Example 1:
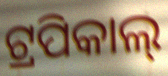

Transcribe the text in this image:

ଟ୍ରପିକାଲ୍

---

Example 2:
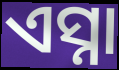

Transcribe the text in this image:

ଏସ୍ନା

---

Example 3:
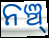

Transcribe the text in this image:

ନଞ୍ଚ୍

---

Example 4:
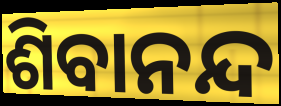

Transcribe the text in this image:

ଶିବାନନ୍ଦ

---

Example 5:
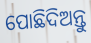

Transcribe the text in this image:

ପୋଛିଦିଅନ୍ତୁ